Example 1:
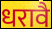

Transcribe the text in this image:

धरावै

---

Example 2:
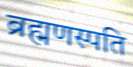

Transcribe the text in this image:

ब्रह्मणस्पति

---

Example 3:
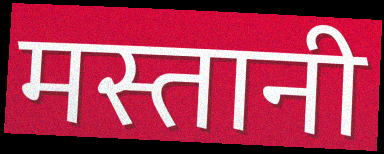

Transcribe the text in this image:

मस्‍तानी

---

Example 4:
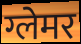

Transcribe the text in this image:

ग्लेमर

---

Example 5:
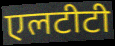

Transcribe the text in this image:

एलटीटी